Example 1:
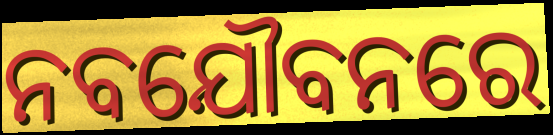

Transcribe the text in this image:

ନବଯୌବନରେ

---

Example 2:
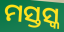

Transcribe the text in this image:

ମସ୍ତସ୍କ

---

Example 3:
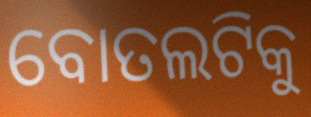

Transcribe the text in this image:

ବୋତଲଟିକୁ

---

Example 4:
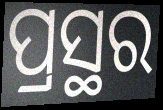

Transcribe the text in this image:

ପ୍ରସ୍ଥର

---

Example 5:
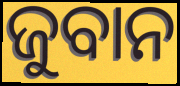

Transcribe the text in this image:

ଜୁବାନ